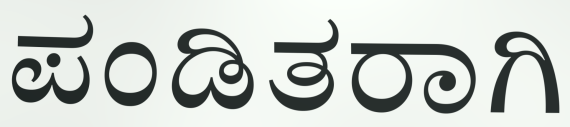
ಪಂಡಿತರಾಗಿ